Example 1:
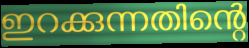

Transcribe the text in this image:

ഇറക്കുന്നതിന്റെ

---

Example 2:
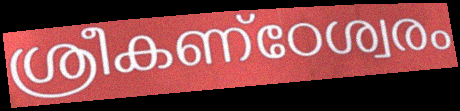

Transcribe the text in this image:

ശ്രീകണ്‌ഠേശ്വരം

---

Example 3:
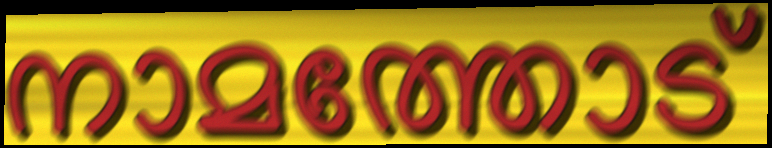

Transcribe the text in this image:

നാമത്തോട്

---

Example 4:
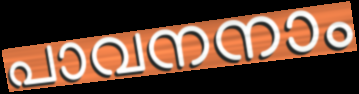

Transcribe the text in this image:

പാവനനാം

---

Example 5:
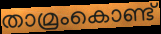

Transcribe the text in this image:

താമ്രംകൊണ്ട്